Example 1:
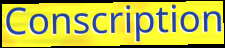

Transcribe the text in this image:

Conscription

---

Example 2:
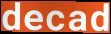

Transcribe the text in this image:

decad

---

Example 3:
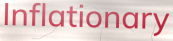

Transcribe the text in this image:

Inflationary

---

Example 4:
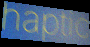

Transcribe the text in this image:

haptic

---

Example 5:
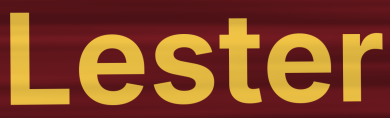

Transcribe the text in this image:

Lester